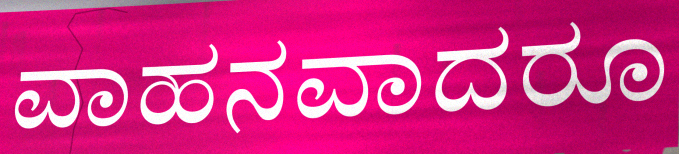
ವಾಹನವಾದರೂ